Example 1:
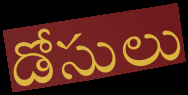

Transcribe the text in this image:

డోసులు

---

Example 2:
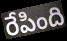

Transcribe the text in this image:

రేపింది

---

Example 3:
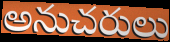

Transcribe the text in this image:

అనుచరులు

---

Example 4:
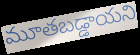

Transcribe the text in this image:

మూతబడ్డాయని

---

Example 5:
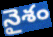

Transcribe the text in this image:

నైశం